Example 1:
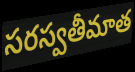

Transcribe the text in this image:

సరస్వతీమాత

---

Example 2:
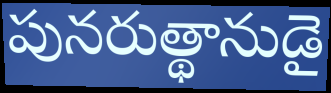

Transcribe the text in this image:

పునరుత్థానుడై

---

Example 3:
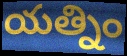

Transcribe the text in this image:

యత్నిం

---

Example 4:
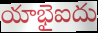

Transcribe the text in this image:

యాభైఐదు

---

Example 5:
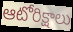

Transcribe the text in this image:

ఆటోరిక్షాలు